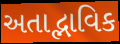
અતાદ્ભાવિક